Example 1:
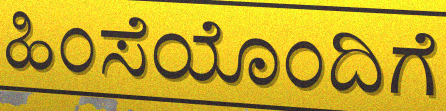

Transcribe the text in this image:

ಹಿಂಸೆಯೊಂದಿಗೆ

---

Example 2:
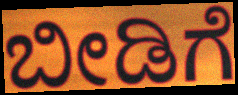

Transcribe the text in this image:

ಬೀಡಿಗೆ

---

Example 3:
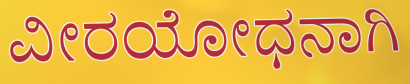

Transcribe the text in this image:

ವೀರಯೋಧನಾಗಿ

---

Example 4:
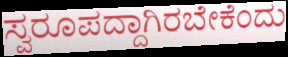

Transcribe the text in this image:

ಸ್ವರೂಪದ್ದಾಗಿರಬೇಕೆಂದು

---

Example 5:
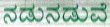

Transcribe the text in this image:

ನಡುನಡುವೆ